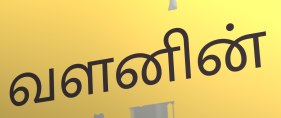
வளனின்